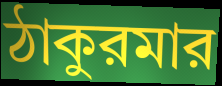
ঠাকুরমার